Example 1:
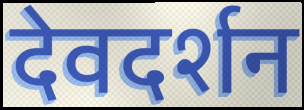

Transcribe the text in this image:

देवदर्शन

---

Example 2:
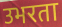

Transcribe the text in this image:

उभरता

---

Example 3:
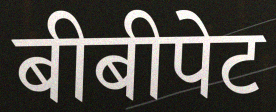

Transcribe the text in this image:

बीबीपेट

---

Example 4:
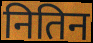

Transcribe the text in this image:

नितिन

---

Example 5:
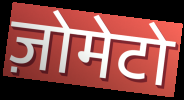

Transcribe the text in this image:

ज़ोमेटो